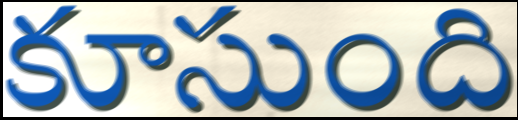
కూసుంది